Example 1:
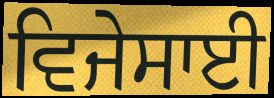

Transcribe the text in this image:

ਵਿਜੇਸਾਈ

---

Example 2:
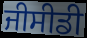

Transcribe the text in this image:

ਜੀਸੀਡੀ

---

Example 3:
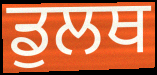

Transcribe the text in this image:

ਡੁਲਥ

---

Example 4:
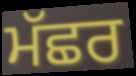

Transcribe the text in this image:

ਮੱਛਰ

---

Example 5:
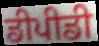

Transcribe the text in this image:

ਡੀਪੀਡੀ